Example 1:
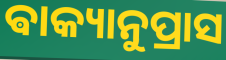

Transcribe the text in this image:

ଵାକ୍ୟାନୁପ୍ରାସ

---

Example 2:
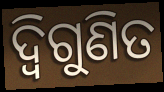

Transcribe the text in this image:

ଦ୍ଵିଗୁଣିତ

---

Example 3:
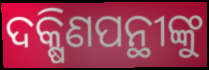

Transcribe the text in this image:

ଦକ୍ଷିଣପନ୍ଥୀଙ୍କୁ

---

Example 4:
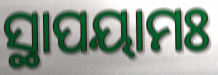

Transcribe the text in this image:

ସ୍ଥାପୟାମଃ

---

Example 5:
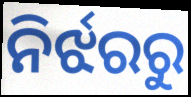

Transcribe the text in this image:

ନିର୍ଝରରୁ